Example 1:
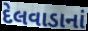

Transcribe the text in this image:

દેલવાડાનાં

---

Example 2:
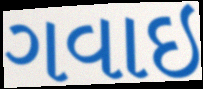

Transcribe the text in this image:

ગવાઇ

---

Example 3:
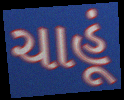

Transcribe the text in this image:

ચાહૂં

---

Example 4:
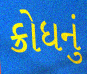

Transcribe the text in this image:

ક્રોધનું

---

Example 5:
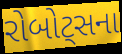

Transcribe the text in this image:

રોબોટ્સના